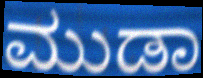
ಮುಡಾ